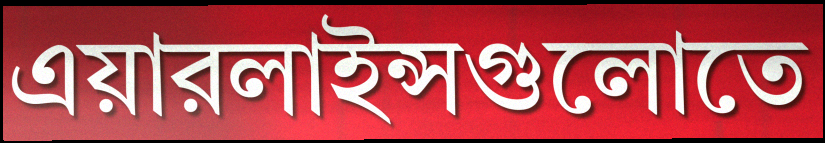
এয়ারলাইন্সগুলোতে